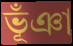
ভূঁঞা